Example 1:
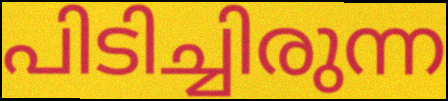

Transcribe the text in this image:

പിടിച്ചിരുന്ന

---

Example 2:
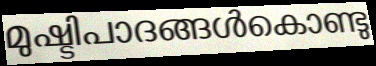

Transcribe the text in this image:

മുഷ്ടിപാദങ്ങൾകൊണ്ടു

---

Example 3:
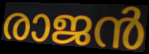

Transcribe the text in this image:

രാജൻ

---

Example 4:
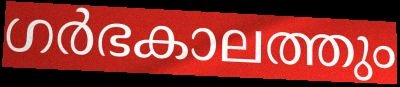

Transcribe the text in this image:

ഗർഭകാലത്തും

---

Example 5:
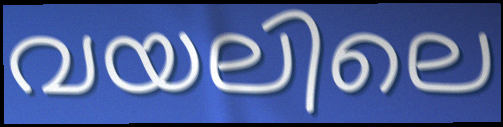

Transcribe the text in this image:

വയലിലെ